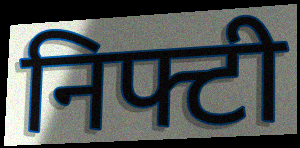
निफ्टी